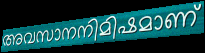
അവസാനനിമിഷമാണ്